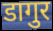
डागुर